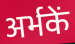
अर्भकें